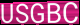
USGBC